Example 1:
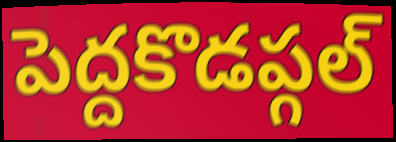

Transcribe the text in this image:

పెద్దకొడప్గల్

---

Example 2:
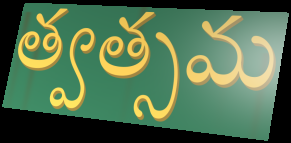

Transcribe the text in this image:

త్వత్సమ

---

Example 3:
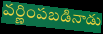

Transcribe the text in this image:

వర్ణింపబడినాడు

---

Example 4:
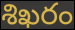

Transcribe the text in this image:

శిఖరం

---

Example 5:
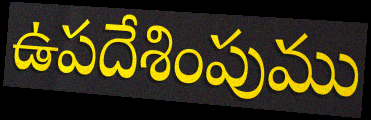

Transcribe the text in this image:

ఉపదేశింపుము